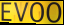
EVOO